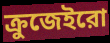
ক্রুজেইরো